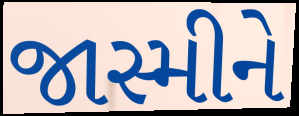
જાસ્મીને